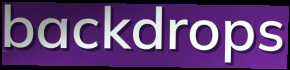
backdrops